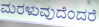
ಮರಳುವುದೆಂದರೆ